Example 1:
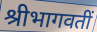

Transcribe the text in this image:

श्रीभागवतीं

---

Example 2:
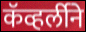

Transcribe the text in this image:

कॅव्हर्लीने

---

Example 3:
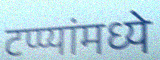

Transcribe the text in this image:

टप्प्यांमध्ये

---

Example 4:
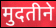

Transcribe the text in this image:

मुदतीने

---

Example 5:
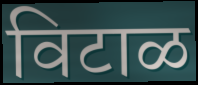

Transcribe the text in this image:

विटाळ